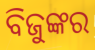
ବିଜୁଙ୍କର